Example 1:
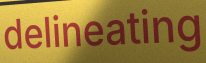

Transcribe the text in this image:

delineating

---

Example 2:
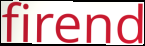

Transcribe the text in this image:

firend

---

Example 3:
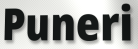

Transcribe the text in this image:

Puneri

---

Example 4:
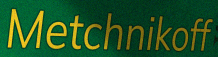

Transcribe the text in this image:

Metchnikoff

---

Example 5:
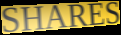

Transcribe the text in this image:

SHARES